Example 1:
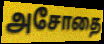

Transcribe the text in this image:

அசோதை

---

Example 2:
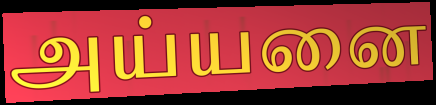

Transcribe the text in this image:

அய்யனை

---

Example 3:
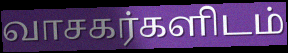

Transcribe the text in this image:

வாசகர்களிடம்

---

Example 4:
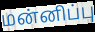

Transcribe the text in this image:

மன்னிப்பு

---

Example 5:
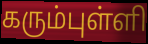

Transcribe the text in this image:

கரும்புள்ளி